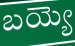
బయ్యె